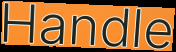
Handle